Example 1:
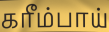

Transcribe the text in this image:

கரீம்பாய்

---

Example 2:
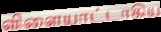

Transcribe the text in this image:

விளையாட்டாகிய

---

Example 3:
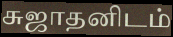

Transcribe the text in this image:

சுஜாதனிடம்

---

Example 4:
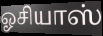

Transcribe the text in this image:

ஓசியாஸ்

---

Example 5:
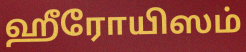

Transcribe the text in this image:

ஹீரோயிஸம்